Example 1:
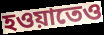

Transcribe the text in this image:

হওয়াতেও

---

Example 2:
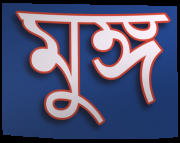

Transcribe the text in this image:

মুঙ্গ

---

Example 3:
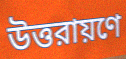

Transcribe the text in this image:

উত্তরায়ণে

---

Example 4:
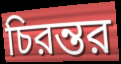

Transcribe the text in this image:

চিরন্তর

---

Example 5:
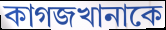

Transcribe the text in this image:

কাগজখানাকে